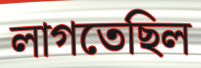
লাগতেছিল